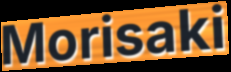
Morisaki